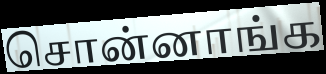
சொன்னாங்க